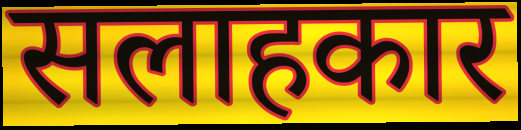
सलाहकार